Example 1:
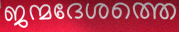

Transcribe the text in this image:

ജന്മദേശത്തെ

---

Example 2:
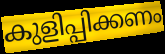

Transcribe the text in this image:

കുളിപ്പിക്കണം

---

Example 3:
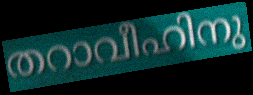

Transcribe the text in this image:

തറാവീഹിനു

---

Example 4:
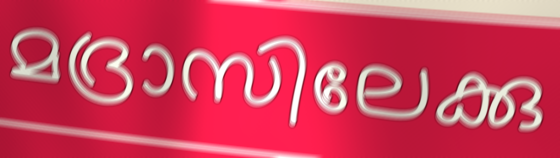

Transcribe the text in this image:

മദ്രാസിലേക്കു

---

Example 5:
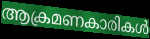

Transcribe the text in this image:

ആക്രമണകാരികൾ